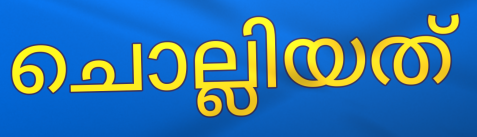
ചൊല്ലിയത്